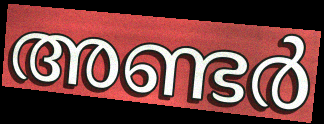
അണ്ടർ